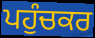
ਪਹੁੰਚਕਰ